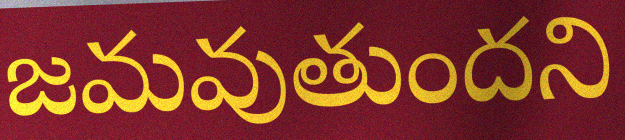
జమవుతుందని